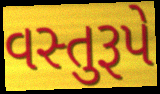
વસ્તુરૂપે